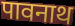
पावनाथ